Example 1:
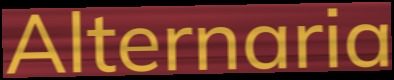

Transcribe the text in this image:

Alternaria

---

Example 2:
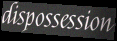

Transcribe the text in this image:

dispossession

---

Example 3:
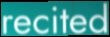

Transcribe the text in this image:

recited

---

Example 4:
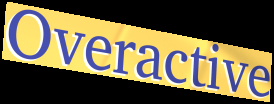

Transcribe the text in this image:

Overactive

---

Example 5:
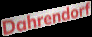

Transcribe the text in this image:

Dahrendorf